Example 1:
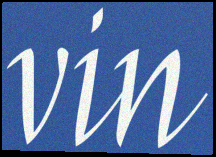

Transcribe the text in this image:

vin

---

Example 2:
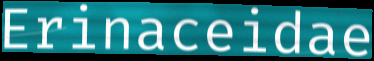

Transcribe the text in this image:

Erinaceidae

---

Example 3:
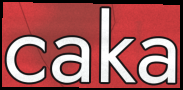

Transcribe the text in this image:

caka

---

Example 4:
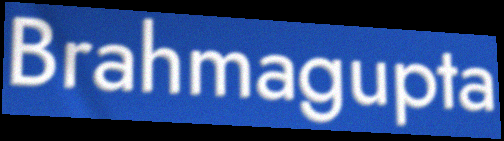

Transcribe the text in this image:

Brahmagupta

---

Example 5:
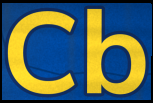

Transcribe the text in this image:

Cb